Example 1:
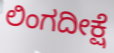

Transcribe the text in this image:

ಲಿಂಗದೀಕ್ಷೆ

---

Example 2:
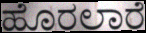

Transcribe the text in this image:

ಹೊರಲಾರೆ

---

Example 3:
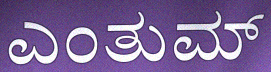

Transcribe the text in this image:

ಎಂತುಮ್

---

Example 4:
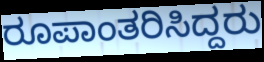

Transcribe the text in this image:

ರೂಪಾಂತರಿಸಿದ್ದರು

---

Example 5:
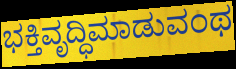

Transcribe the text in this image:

ಭಕ್ತಿವೃದ್ಧಿಮಾಡುವಂಥ